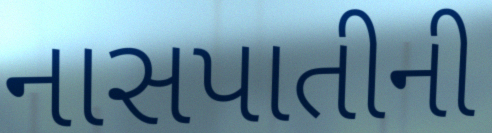
નાસપાતીની